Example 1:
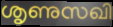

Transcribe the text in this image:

ശൃണുസഖി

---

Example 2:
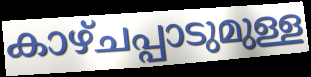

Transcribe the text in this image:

കാഴ്ചപ്പാടുമുള്ള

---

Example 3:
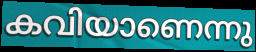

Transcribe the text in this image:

കവിയാണെന്നു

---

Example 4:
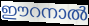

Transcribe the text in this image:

ഈറനാൽ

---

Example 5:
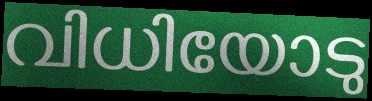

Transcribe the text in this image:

വിധിയോടു